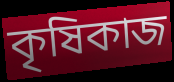
কৃষিকাজ